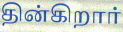
தின்கிறார்